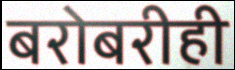
बरोबरीही